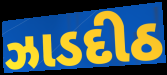
ઝાડદીઠ